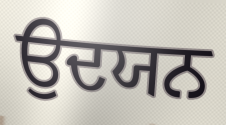
ਉਦਯਨ